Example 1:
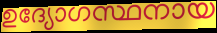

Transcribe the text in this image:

ഉദ്യോഗസ്ഥനായ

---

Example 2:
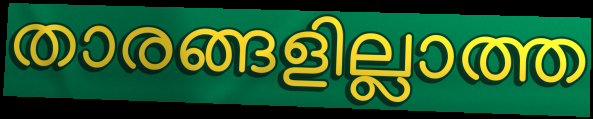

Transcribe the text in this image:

താരങ്ങളില്ലാത്ത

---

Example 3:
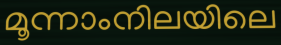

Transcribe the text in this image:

മൂന്നാംനിലയിലെ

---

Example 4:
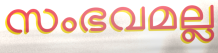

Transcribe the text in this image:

സംഭവമല്ല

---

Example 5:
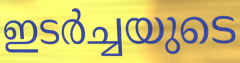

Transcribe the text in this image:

ഇടർച്ചയുടെ